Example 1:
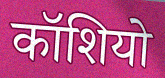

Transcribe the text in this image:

कॉशियो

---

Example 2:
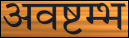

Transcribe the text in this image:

अवष्टम्भ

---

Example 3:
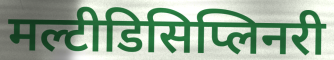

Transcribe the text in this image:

मल्टीडिसिप्लिनरी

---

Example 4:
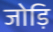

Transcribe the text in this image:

जोड़ि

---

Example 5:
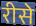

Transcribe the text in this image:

रीसे